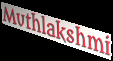
Muthlakshmi